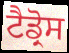
ਟੈਡ੍ਰੋਸ